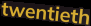
twentieth